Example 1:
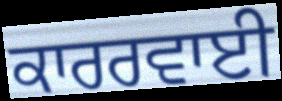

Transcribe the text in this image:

ਕਾਰਰਵਾਈ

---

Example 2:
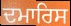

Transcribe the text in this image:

ਦਮਾਰਿਸ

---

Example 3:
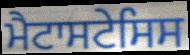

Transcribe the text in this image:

ਮੈਟਾਸਟੇਸਿਸ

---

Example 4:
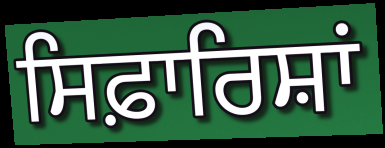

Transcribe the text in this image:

ਸਿਫ਼ਾਰਿਸ਼ਾਂ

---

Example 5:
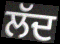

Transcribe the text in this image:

ਲੱਦ